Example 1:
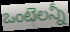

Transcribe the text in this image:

ఒంటెలన్నీ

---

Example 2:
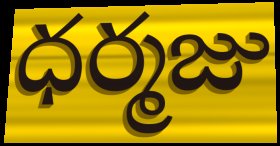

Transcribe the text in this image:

ధర్మజు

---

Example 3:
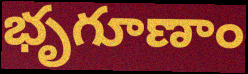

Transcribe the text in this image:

భృగూణాం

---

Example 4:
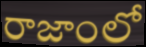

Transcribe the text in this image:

రాజాంలో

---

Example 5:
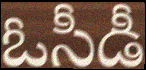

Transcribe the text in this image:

ఓసీడీ